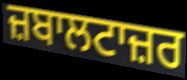
ਜ਼ਬਾਲਟਾਜ਼ਰ